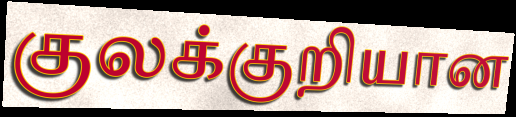
குலக்குறியான